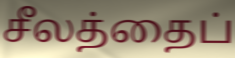
சீலத்தைப்